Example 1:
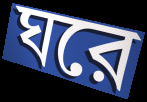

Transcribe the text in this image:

ঘরে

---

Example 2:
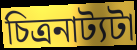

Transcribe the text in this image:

চিত্রনাট্যটা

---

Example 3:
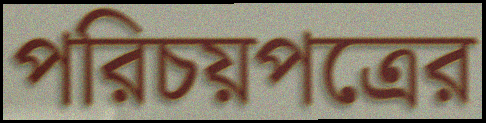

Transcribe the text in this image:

পরিচয়পত্রের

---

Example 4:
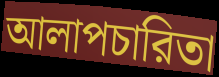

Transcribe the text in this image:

আলাপচারিতা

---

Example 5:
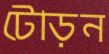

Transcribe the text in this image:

টোড়ন